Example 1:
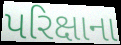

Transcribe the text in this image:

પરિક્ષાના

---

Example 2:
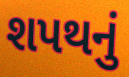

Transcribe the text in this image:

શપથનું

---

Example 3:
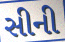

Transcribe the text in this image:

સીની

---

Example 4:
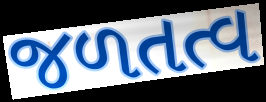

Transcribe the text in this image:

જળતત્વ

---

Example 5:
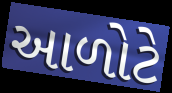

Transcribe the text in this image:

આળોટે